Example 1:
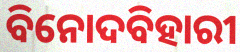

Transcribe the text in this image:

ବିନୋଦବିହାରୀ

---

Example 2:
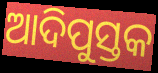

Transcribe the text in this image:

ଆଦିପୁସ୍ତକ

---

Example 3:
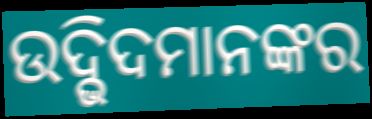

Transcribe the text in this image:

ଉଦ୍ଭିଦମାନଙ୍କର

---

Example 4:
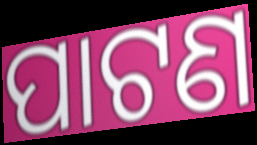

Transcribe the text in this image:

ପାଟଣ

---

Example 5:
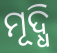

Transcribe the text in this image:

ମୂଦ୍ଧି